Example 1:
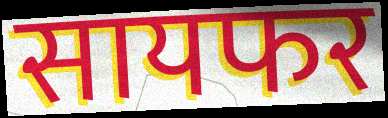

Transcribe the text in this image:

सायफर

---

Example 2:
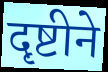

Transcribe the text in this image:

दृष्टीने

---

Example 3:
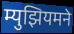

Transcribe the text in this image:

म्युझियमने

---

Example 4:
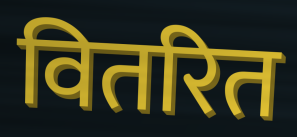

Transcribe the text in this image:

वितरित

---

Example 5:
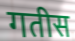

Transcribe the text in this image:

गतीस